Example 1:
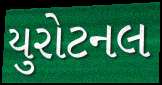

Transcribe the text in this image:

યુરોટનલ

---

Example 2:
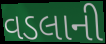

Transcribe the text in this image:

વડલાની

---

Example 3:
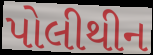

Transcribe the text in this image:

પોલીથીન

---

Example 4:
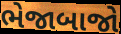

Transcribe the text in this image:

ભેજાબાજો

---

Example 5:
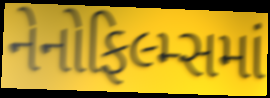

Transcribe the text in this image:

નેનોફિલ્મ્સમાં